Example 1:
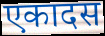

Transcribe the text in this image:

एकादस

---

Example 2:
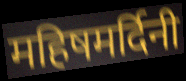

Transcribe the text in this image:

महिषमर्दिनी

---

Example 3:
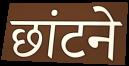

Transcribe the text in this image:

छांटने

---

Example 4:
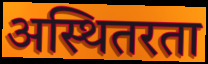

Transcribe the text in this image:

अस्थितरता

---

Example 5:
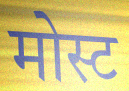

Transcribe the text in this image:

मोस्ट